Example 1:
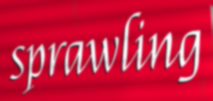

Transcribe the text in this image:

sprawling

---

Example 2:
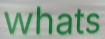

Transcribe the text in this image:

whats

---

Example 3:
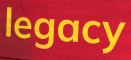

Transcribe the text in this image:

legacy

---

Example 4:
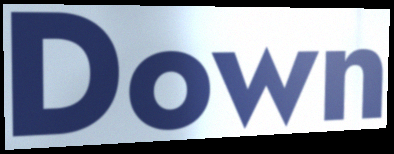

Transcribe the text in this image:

Down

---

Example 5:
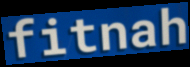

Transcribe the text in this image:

fitnah